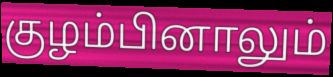
குழம்பினாலும்